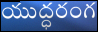
యుద్ధరంగ